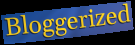
Bloggerized